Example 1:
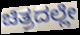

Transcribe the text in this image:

ಚಿತ್ರದಲ್ಲೇ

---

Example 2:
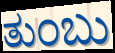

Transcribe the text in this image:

ತುಂಬು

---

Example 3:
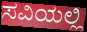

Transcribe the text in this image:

ಸವಿಯಲ್ಲಿ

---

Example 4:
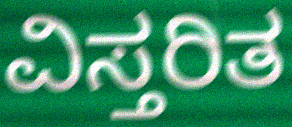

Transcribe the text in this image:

ವಿಸ್ತರಿತ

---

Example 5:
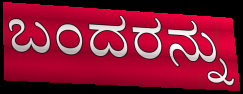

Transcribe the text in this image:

ಬಂದರನ್ನು